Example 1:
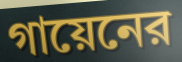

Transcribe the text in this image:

গায়েনের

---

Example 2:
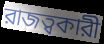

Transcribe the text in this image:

রাজত্বকারী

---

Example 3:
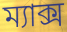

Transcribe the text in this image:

ম্যাক্স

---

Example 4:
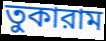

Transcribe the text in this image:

তুকারাম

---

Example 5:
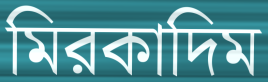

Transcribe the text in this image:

মিরকাদিম